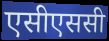
एसीएससी